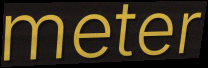
meter